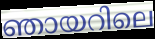
ഞായറിലെ